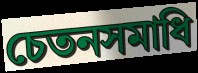
চেতনসমাধি